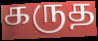
கருத